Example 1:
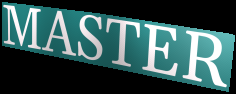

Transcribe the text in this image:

MASTER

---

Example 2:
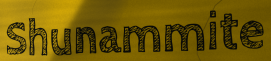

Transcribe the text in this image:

Shunammite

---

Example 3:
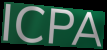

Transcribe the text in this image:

ICPA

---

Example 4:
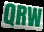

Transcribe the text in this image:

QRW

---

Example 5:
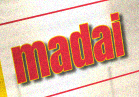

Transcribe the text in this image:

madai